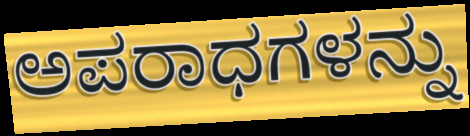
ಅಪರಾಧಗಳನ್ನು